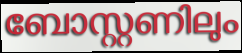
ബോസ്റ്റണിലും